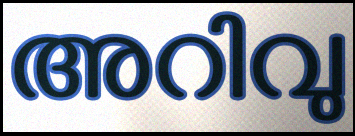
അറിവു